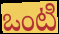
ఒంటి